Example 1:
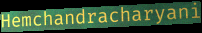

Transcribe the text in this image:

Hemchandracharyani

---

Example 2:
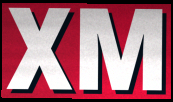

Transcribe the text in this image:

XM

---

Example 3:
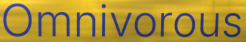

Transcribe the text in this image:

Omnivorous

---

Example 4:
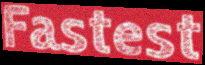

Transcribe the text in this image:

Fastest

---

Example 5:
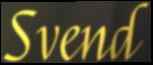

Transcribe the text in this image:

Svend